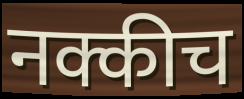
नक्‍कीच